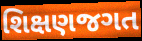
શિક્ષણજગત